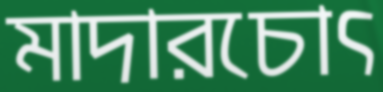
মাদারচোৎ